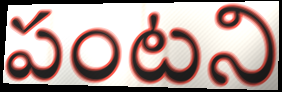
పంటని